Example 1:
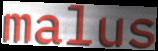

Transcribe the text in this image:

malus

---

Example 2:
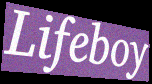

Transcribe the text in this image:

Lifeboy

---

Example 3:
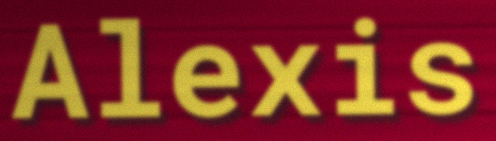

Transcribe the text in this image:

Alexis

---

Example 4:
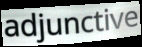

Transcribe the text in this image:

adjunctive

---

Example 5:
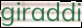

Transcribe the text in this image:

giraddi